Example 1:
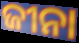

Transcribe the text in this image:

ଜୀନା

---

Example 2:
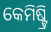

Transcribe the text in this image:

କେମିଷ୍ଟ୍ରି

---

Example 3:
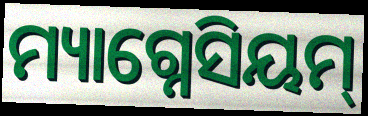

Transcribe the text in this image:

ମ୍ୟାଗ୍ନେସିୟମ୍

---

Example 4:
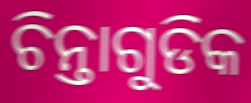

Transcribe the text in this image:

ଚିନ୍ତାଗୁଡିକ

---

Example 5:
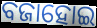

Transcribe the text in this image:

ବଜାହୋଇ